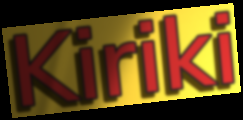
Kiriki